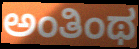
ಅಂತಿಂಥ